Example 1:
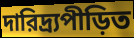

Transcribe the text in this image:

দারিদ্র্যপীড়িত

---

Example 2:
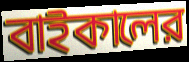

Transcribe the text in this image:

বাইকালের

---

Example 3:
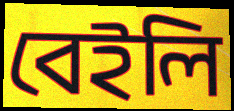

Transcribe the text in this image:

বেইলি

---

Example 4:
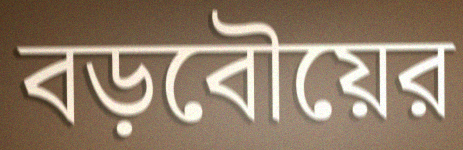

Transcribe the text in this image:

বড়বৌয়ের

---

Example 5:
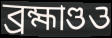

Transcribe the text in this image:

ব্রহ্মাণ্ডও